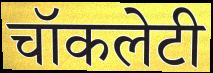
चॉकलेटी